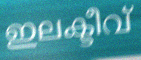
ഇലക്ടീവ്